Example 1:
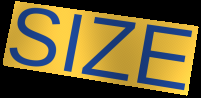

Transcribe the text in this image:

SIZE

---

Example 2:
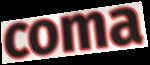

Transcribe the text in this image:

coma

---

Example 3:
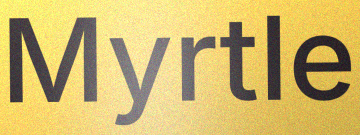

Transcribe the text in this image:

Myrtle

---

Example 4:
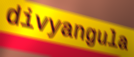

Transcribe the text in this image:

divyangula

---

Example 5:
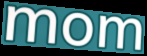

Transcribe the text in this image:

mom